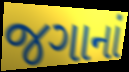
જગાનાં